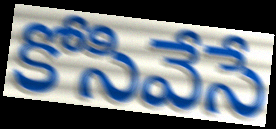
కోసివేసే